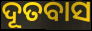
ଦୂତବାସ